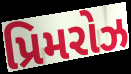
પ્રિમરોઝ